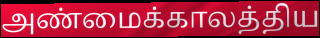
அண்மைக்காலத்திய